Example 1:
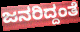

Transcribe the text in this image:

ಜನರಿದ್ದಂತೆ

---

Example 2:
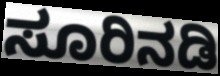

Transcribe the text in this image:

ಸೂರಿನಡಿ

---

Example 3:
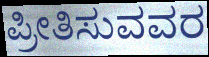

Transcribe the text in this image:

ಪ್ರೀತಿಸುವವರ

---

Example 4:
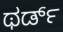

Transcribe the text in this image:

ಥರ್ಡ್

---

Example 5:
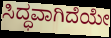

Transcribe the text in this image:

ಸಿದ್ಧವಾಗಿದೆಯೇ